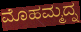
ಮೊಹಮ್ಮದ್ನ